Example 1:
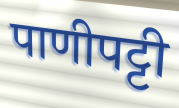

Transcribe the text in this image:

पाणीपट्टी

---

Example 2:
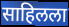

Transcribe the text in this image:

साहिलला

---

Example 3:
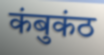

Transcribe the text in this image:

कंबुकंठ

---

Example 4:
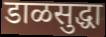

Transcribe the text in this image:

डाळसुद्धा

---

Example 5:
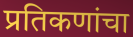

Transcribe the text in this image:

प्रतिकणांचा